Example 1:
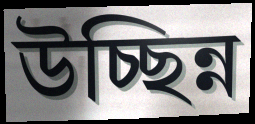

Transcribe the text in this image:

উচ্ছিন্ন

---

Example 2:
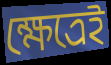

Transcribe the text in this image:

ক্ষেত্রেই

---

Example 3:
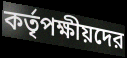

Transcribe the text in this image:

কর্তৃপক্ষীয়দের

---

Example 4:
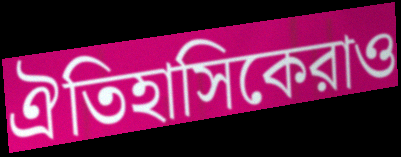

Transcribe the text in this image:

ঐতিহাসিকেরাও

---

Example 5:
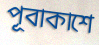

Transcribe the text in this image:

পূবাকাশে